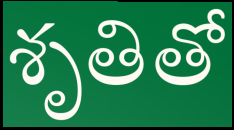
శృతితో